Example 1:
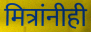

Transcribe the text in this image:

मित्रांनीही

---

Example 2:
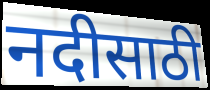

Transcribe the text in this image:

नदीसाठी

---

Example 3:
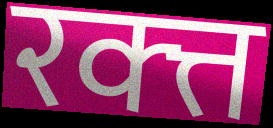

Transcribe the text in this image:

रक्त्त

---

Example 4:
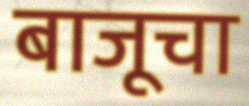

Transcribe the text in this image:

बाजूचा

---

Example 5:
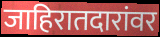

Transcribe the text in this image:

जाहिरातदारांवर